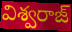
విశ్వరాజ్